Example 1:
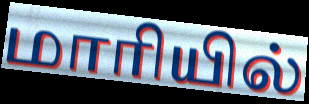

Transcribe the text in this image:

மாரியில்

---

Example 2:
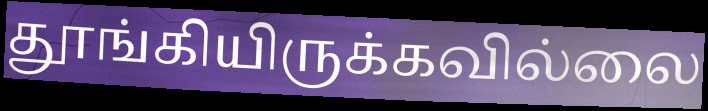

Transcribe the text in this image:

தூங்கியிருக்கவில்லை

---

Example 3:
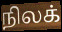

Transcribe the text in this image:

நிலக்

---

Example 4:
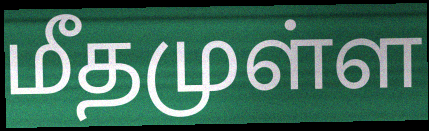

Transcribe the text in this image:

மீதமுள்ள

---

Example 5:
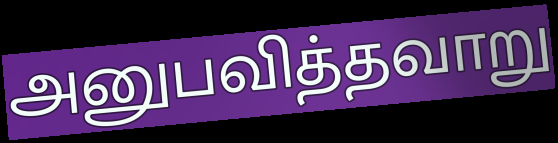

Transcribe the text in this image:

அனுபவித்தவாறு